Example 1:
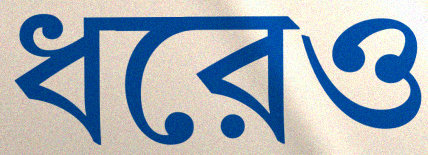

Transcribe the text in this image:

ধরেও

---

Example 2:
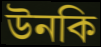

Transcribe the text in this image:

উনকি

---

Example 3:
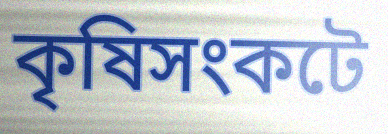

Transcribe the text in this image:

কৃষিসংকটে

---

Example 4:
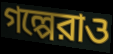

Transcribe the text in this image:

গল্পেরাও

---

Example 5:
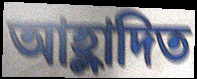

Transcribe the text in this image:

আহ্লাদিত